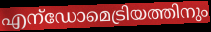
എന്ഡോമെട്രിയത്തിനും